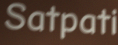
Satpati